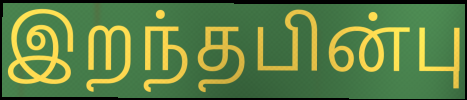
இறந்தபின்பு